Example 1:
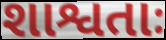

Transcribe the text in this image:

શાશ્વતાઃ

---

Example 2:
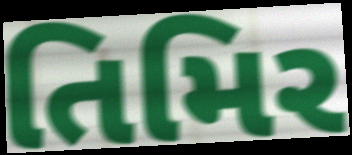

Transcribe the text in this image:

તિમિર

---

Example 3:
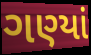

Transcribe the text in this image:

ગણ્યાં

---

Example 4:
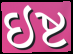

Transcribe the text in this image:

ઇષ્ટ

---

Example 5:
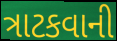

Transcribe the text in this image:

ત્રાટકવાની